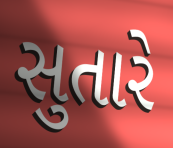
સુતારે